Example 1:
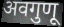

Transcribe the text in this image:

अवगुणू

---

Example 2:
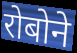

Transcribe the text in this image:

रोबोने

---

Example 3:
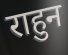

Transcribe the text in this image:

राहुन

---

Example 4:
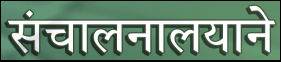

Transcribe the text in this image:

संचालनालयाने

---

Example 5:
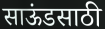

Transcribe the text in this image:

साऊंडसाठी